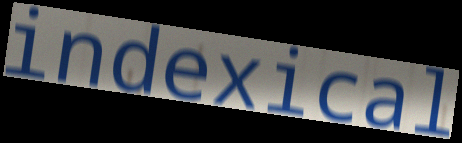
indexical